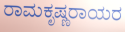
ರಾಮಕೃಷ್ಣರಾಯರ